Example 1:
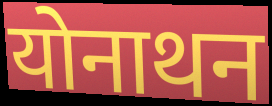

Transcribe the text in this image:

योनाथन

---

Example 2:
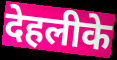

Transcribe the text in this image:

देहलीके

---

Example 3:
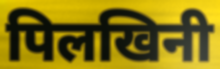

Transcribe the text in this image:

पिलखिनी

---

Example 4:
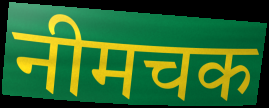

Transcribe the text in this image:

नीमचक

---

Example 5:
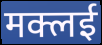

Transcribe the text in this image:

मक्लई